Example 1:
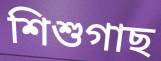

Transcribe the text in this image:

শিশুগাছ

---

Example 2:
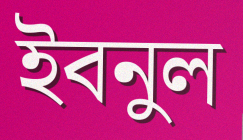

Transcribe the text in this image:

ইবনুল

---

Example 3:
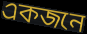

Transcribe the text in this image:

একজনে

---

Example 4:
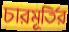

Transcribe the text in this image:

চারমূর্তির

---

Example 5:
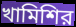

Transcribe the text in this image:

খামিশির